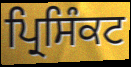
ਪ੍ਰਿਸਿੰਕਟ